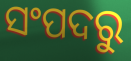
ସଂପଦରୁ